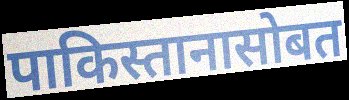
पाकिस्तानासोबत